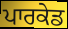
ਪਾਰਕੇਡ